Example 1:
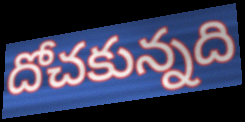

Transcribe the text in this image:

దోచకున్నది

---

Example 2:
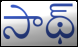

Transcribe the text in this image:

సాథ్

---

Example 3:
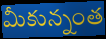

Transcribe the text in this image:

మీకున్నంత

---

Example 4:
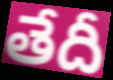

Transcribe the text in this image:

తేదీ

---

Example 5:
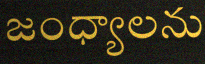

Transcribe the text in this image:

జంధ్యాలను